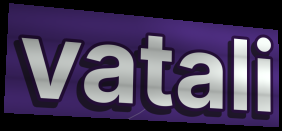
vatali